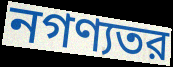
নগণ্যতর